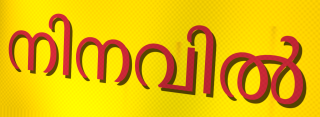
നിനവിൽ